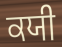
ਕਯੀ